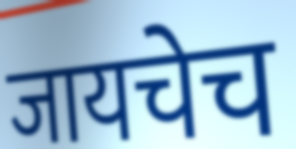
जायचेच